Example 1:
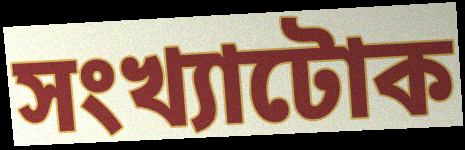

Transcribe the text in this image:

সংখ্যাটোক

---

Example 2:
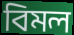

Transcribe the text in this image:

বিমল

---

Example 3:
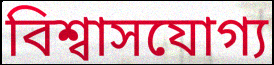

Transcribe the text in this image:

বিশ্বাসযোগ্য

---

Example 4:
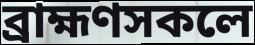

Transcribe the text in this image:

ব্ৰাহ্মণসকলে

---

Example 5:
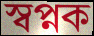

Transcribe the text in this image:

স্বপ্নক